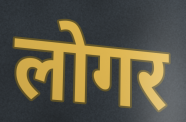
लोगर